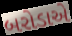
બરોડાએ